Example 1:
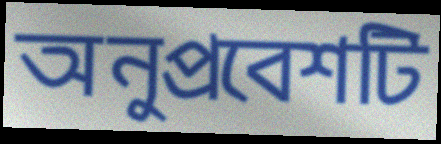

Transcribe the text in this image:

অনুপ্রবেশটি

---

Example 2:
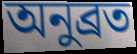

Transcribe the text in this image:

অনুব্রত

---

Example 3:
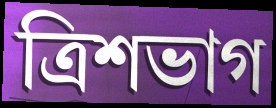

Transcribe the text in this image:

ত্রিশভাগ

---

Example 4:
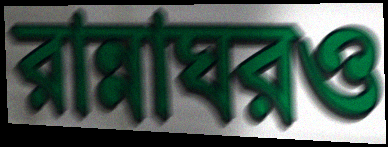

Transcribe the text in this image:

রান্নাঘরও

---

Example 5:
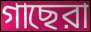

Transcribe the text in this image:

গাছেরা